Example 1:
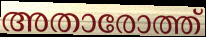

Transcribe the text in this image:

അതാരോത്ത്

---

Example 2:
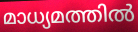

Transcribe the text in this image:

മാധ്യമത്തിൽ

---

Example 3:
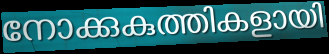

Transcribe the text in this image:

നോക്കുകുത്തികളായി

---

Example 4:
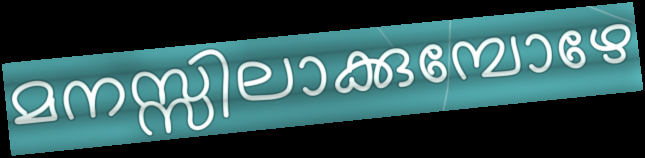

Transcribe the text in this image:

മനസ്സിലാക്കുമ്പോഴേ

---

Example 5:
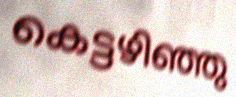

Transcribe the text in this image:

കെട്ടഴിഞ്ഞു